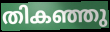
തികഞ്ഞു